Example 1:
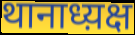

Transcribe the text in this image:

थानाध्य़क्ष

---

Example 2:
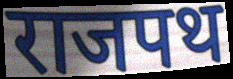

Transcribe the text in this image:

राजपथ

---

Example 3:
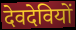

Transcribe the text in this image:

देवदेवियों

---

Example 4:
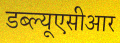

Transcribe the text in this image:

डब्ल्यूएसीआर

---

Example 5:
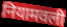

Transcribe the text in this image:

नियामवली